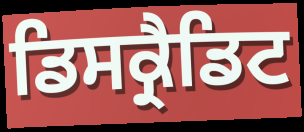
ਡਿਸਕ੍ਰੈਡਿਟ